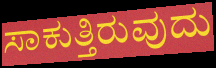
ಸಾಕುತ್ತಿರುವುದು